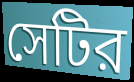
সেটির